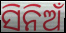
ସିନିଅଁ